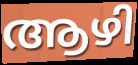
ആഴി